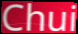
Chui